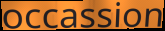
occassion